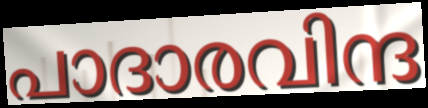
പാദാരവിന്ദ